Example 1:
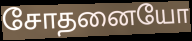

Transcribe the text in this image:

சோதனையோ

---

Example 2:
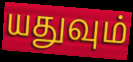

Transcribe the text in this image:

யதுவும்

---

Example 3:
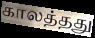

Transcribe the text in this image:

காலத்தது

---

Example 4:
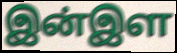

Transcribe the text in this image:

இன்இள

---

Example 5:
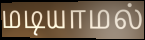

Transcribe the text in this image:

மடியாமல்